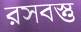
রসবস্তু